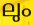
ലും